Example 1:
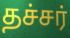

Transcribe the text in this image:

தச்சர்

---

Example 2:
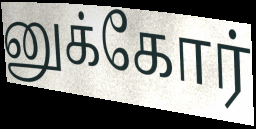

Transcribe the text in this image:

னுக்கோர்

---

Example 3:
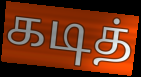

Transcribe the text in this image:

கடித்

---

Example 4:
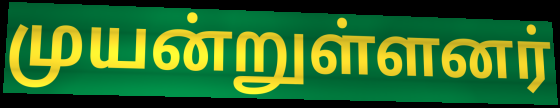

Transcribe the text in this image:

முயன்றுள்ளனர்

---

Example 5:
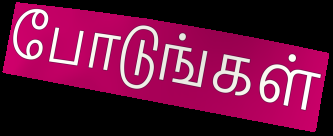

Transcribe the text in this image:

போடுங்கள்